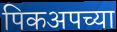
पिकअपच्या